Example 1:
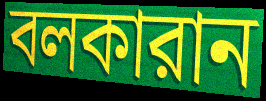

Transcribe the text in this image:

বলকারান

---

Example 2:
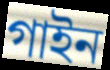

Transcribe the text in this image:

গাইন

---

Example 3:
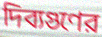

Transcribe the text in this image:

দিব্যগুণের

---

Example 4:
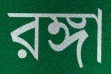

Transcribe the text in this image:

রঙ্গা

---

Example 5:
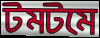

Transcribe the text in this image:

টমটমে